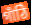
গাঁঠি